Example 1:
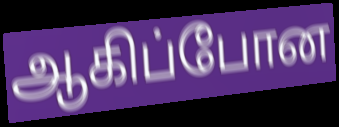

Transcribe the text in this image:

ஆகிப்போன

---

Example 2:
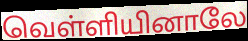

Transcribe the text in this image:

வெள்ளியினாலே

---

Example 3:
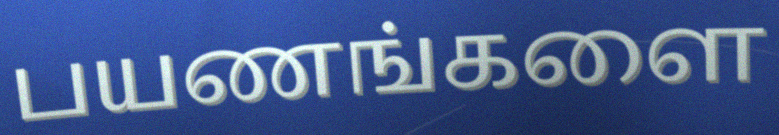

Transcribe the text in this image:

பயணங்களை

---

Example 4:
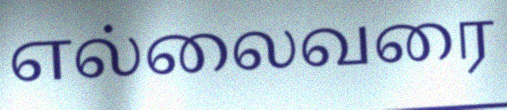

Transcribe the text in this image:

எல்லைவரை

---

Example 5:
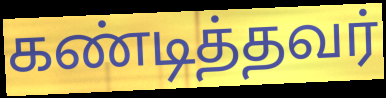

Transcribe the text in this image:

கண்டித்தவர்